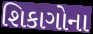
શિકાગોના